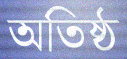
অতিষ্ঠ